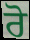
ਰੋ